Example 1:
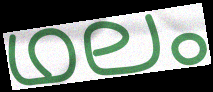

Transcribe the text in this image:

ഥലം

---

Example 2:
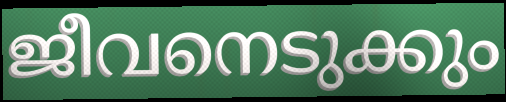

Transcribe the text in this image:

ജീവനെടുക്കും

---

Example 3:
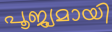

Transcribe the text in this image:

പൂജ്യമായി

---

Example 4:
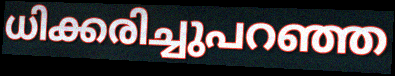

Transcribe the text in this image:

ധിക്കരിച്ചുപറഞ്ഞ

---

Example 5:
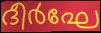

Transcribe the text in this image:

ദീർഘേ